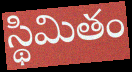
స్థిమితం